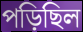
পড়িছিল